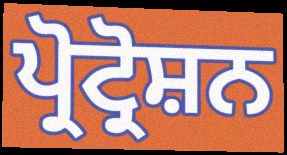
ਪ੍ਰੋਟ੍ਰੋਸ਼ਨ